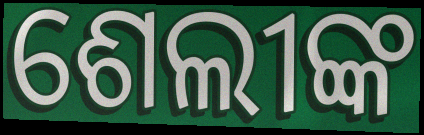
ଶେଲୀଙ୍କ